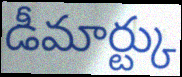
డీమార్ట్కు